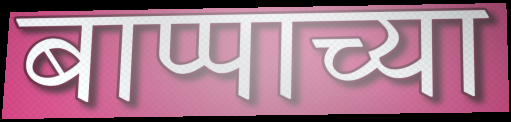
बाप्पाच्या